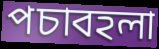
পচাবহলা